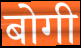
बोगी